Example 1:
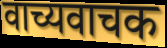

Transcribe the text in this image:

वाच्यवाचक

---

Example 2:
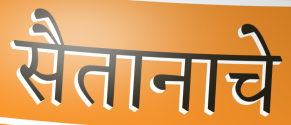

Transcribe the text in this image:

सैतानाचे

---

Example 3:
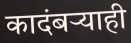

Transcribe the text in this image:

कादंबऱ्याही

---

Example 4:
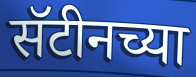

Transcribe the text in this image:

सॅटीनच्या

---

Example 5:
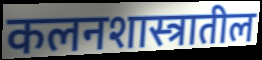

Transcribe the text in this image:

कलनशास्त्रातील